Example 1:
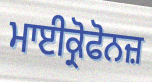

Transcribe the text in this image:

ਮਾਈਕ੍ਰੋਫੋਨਜ਼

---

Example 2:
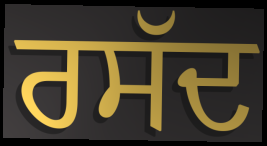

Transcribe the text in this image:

ਰਸੱਦ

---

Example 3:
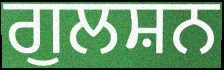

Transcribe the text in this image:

ਗੁਲਸ਼ਨ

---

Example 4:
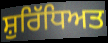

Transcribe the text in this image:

ਸ਼ੁਰਿੱਧਿਅਤ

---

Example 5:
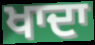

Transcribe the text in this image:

ਖਾਦਾ